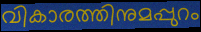
വികാരത്തിനുമപ്പുറം